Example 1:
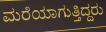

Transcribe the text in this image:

ಮರೆಯಾಗುತ್ತಿದ್ದರು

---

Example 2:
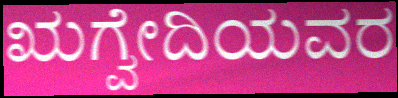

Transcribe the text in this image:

ಋಗ್ವೇದಿಯವರ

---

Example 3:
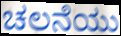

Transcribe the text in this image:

ಚಲನೆಯು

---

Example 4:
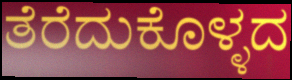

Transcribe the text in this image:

ತೆರೆದುಕೊಳ್ಳದ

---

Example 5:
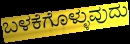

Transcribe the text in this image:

ಬಳಕೆಗೊಳ್ಳುವುದು